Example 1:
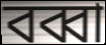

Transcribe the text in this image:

বব্বা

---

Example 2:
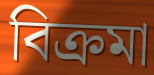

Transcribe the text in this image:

বিক্রমা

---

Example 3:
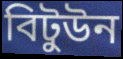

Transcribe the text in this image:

বিটুউন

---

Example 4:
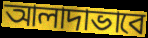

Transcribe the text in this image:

আলাদাভাবে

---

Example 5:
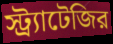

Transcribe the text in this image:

স্ট্র্যাটেজির